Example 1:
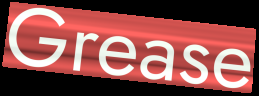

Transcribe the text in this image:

Grease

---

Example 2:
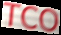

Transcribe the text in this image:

TCO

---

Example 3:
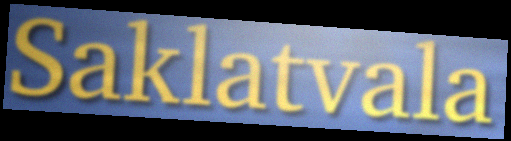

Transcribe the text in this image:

Saklatvala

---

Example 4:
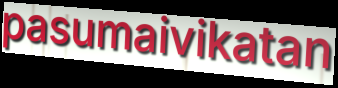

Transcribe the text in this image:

pasumaivikatan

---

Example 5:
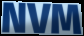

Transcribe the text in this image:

NVM